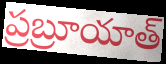
ప్రబ్రూయాత్